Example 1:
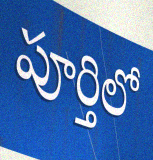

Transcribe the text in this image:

పూర్తిలో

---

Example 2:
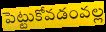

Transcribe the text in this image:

పెట్టుకోవడంవల్ల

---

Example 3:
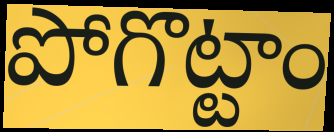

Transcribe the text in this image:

పోగొట్టాం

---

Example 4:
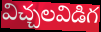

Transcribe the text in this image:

విచ్చలవిడిగ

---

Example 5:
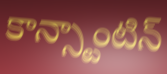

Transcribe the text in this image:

కాన్స్టాంటిన్